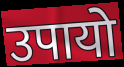
उपायो